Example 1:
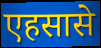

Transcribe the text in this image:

एहसासे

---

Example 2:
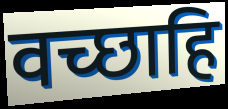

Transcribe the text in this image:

वच्छाहि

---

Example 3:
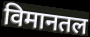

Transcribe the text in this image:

विमानतल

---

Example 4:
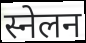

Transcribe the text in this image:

स्नेलन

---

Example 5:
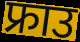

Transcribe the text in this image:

फ्राउ